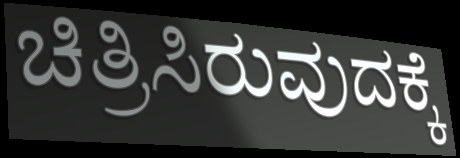
ಚಿತ್ರಿಸಿರುವುದಕ್ಕೆ